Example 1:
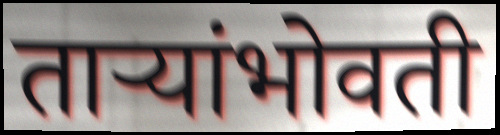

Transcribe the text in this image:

ताऱ्यांभोवती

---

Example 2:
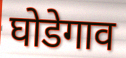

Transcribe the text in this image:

घोडेगाव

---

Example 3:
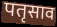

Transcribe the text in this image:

पतृसाव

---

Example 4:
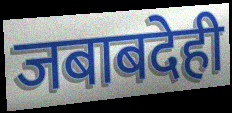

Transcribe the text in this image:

जबाबदेही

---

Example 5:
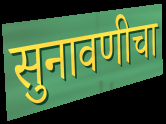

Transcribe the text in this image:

सुनावणीचा